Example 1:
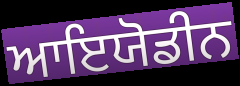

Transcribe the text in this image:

ਆਇਯੋਡੀਨ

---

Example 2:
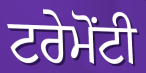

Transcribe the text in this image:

ਟਰੇਮੋਂਟੀ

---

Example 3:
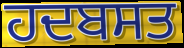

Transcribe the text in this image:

ਹਦਬਸਤ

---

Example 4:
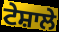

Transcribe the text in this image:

ਟੇਸ਼ਾਲੇ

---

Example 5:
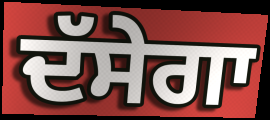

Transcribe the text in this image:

ਦੱਸੇਗਾ